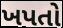
ખપતો